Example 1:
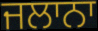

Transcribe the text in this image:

ਜਲਾਨਾ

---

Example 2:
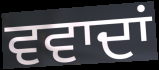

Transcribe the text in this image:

ਵਵਾਦਾਂ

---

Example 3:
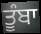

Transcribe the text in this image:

ਤੂੰਬਾ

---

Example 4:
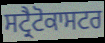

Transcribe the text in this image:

ਸਟ੍ਰੈਟੋਕਾਸਟਰ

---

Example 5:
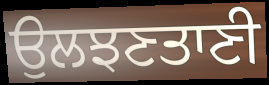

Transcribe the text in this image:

ਉਲਝਣਤਾਣੀ